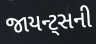
જાયન્ટ્સની